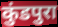
कुंडपुरा